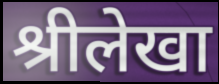
श्रीलेखा